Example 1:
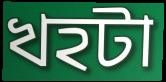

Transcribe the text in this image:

খহটা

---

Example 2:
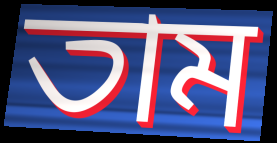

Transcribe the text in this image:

তাম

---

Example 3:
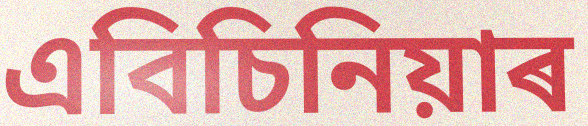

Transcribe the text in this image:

এবিচিনিয়াৰ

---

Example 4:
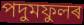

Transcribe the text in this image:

পদুমফুলৰ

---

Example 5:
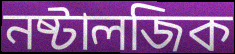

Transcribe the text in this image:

নষ্টালজিক